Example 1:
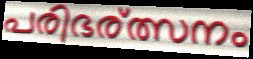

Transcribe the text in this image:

പരിഭര്ത്സനം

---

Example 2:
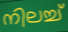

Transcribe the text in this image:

നിലച്ച്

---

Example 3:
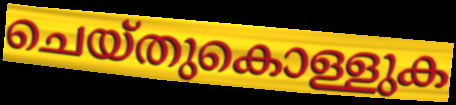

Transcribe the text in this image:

ചെയ്തുകൊള്ളുക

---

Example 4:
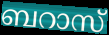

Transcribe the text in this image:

ബറാസ്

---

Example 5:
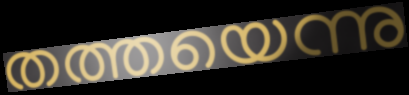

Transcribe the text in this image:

തത്തയെന്നു